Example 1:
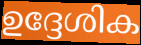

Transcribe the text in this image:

ഉദ്ദേശിക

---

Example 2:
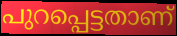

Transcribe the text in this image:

പുറപ്പെട്ടതാണ്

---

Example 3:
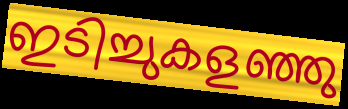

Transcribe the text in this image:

ഇടിച്ചുകളഞ്ഞു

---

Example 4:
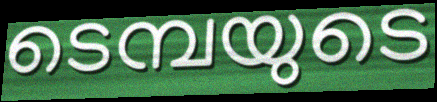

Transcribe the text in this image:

ടെമ്പയുടെ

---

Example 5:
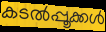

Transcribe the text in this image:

കടൽപ്പൂക്കൾ